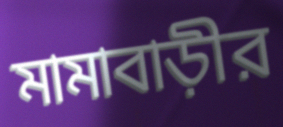
মামাবাড়ীর